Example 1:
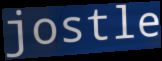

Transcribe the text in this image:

jostle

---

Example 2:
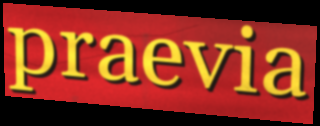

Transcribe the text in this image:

praevia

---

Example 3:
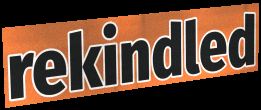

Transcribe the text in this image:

rekindled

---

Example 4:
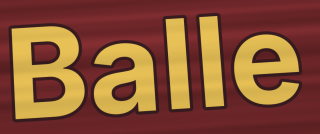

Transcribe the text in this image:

Balle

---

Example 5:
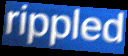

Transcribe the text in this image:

rippled